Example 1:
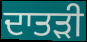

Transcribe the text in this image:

ਦਾਤੜੀ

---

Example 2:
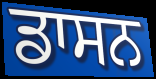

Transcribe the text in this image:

ਡਾਸਨ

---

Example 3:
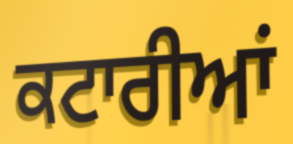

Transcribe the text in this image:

ਕਟਾਰੀਆਂ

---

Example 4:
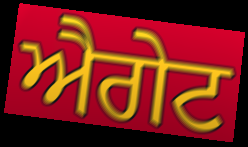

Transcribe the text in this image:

ਐਗੇਟ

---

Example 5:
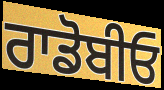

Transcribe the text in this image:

ਰਾਡੋਬੀਓ